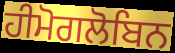
ਹੀਮੋਗਲੋਬਿਨ